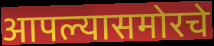
आपल्यासमोरचे